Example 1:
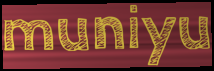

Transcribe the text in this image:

muniyu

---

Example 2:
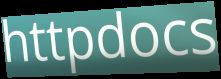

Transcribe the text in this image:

httpdocs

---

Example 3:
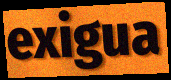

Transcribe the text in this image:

exigua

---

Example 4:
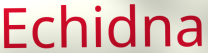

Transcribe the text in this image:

Echidna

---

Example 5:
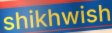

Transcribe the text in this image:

shikhwish